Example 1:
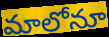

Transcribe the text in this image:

మాలోనూ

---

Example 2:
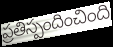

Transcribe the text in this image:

ప్రతిస్పందించింది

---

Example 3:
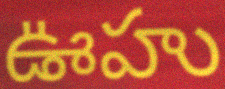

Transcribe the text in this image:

ఊహు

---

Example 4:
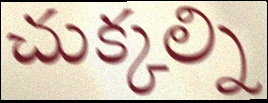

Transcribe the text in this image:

చుక్కల్ని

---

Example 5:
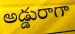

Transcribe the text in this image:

అడ్డురాగా